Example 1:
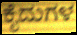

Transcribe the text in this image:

ಕೈದುಗಳ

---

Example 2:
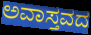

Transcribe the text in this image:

ಅವಾಸ್ತವದ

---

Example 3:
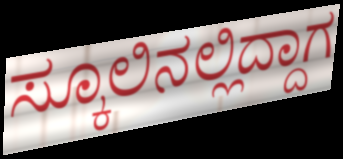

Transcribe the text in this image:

ಸ್ಕೂಲಿನಲ್ಲಿದ್ದಾಗ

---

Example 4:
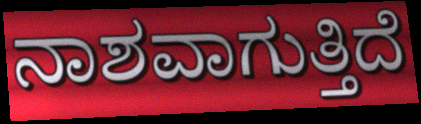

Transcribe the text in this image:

ನಾಶವಾಗುತ್ತಿದೆ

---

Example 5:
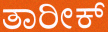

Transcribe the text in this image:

ತಾರೀಕ್